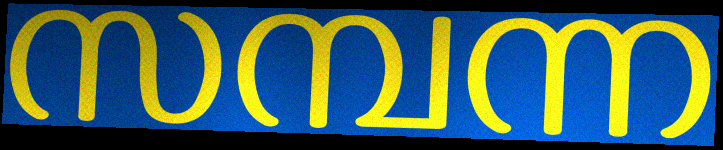
സമ്പന്ന